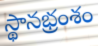
స్థానభ్రంశం